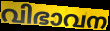
വിഭാവന